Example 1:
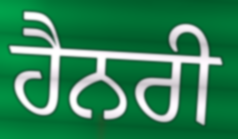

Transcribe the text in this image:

ਹੈਨਰੀ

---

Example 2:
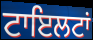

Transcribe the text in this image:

ਟਾਇਲਟਾਂ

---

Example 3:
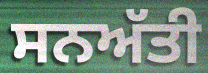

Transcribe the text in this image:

ਸਨਅੱਤੀ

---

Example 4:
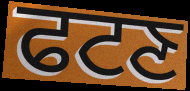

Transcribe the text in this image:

ਫਟਣ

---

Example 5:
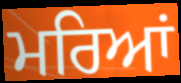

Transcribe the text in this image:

ਮਰਿਆਂ